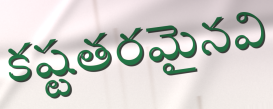
కష్టతరమైనవి